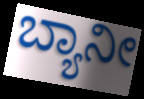
ಬ್ಯಾನೀ